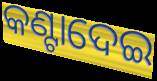
କଣ୍ଟାଦେଇ